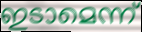
ഇടാമെന്ന്